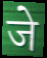
जे